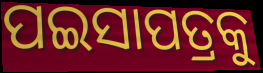
ପଇସାପତ୍ରକୁ